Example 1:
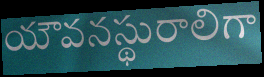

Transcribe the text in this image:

యౌవనస్థురాలిగా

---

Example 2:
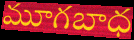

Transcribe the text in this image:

మూగబాధ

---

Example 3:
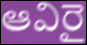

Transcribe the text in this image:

ఆవిరై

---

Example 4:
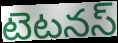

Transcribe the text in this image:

టెటనస్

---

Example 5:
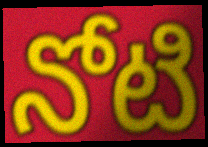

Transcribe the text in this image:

నోటి